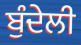
ਬੁੰਦੇਲੀ